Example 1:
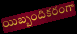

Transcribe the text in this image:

యిబ్బందికరంగా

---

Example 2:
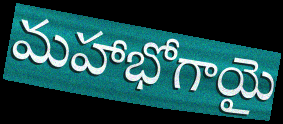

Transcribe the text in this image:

మహాభోగాయై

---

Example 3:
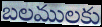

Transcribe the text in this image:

బలములకు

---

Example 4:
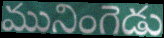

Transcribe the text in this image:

మునింగెడు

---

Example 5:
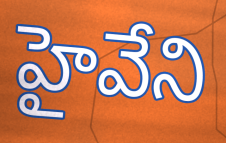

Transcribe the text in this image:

హైవేని